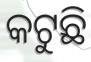
କଟୁଛି